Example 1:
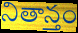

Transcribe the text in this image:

నితాన్తం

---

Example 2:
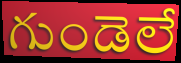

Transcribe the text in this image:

గుండెలే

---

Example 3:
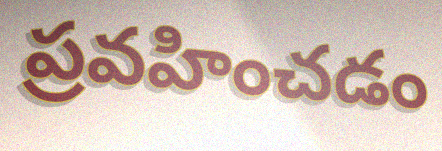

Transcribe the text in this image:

ప్రవహించడం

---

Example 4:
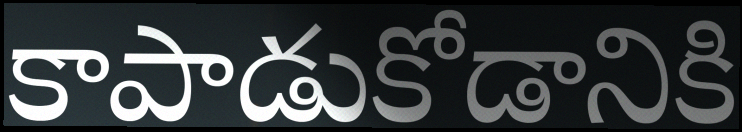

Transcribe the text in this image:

కాపాడుకోడానికి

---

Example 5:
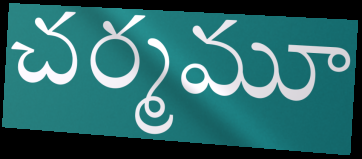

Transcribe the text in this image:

చర్మమూ